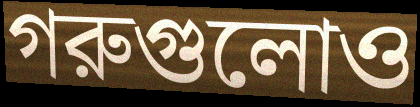
গরুগুলোও